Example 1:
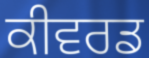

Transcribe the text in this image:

ਕੀਵਰਡ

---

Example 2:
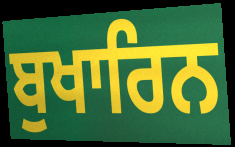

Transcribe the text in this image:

ਬੁਖਾਰਿਨ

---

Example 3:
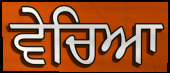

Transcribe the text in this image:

ਵੇਚਿਆ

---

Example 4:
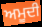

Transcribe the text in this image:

ਅਮੂਦੀ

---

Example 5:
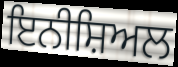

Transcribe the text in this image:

ਇਨੀਸ਼ਿਅਲ